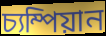
চ্যম্পিয়ান